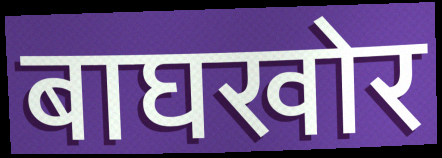
बाघखोर